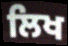
ਲਿਖ